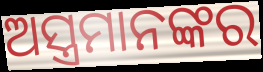
ଅସ୍ତ୍ରମାନଙ୍କର